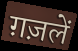
ग़ज़लें